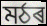
মঠৰ